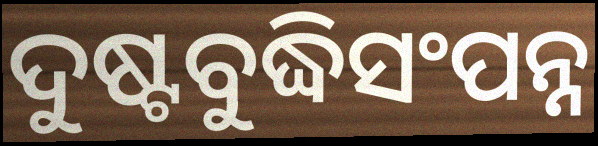
ଦୁଷ୍ଟବୁଦ୍ଧିସଂପନ୍ନ